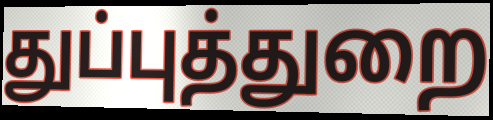
துப்புத்துறை